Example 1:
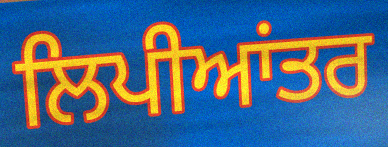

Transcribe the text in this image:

ਲਿਪੀਆਂਤਰ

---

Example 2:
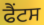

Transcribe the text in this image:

ਫੈਂਟਸ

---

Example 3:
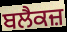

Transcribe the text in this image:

ਬਲੈਕਜ਼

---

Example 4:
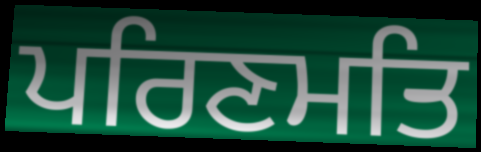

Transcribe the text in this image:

ਪਰਿਣਮਤਿ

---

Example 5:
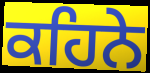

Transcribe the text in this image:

ਕਹਿਨੇ